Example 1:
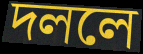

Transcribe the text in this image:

দললে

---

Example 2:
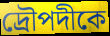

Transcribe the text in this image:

দ্রৌপদীকে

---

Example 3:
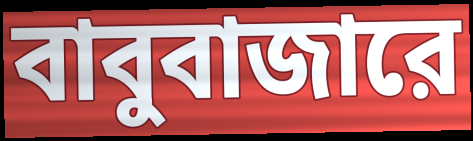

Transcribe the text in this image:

বাবুবাজারে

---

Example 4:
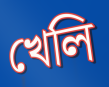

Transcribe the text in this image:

খেলি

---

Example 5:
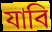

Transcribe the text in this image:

যাবি